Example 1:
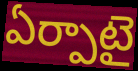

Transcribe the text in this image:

ఏర్పాటై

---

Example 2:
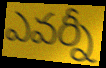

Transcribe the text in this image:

ఎవర్నీ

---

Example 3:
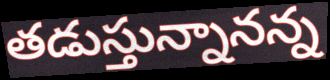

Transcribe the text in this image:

తడుస్తున్నానన్న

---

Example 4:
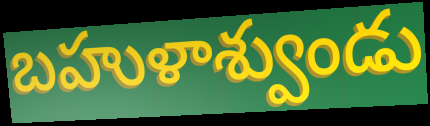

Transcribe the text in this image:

బహుళాశ్వుండు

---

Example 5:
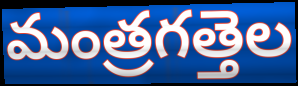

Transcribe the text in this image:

మంత్రగత్తెల